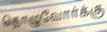
தொழுவோர்க்கு